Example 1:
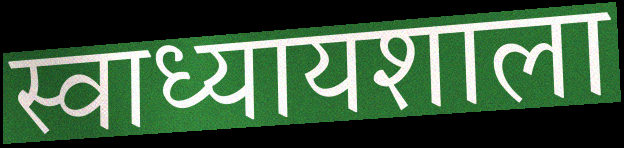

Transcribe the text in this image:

स्वाध्यायशाला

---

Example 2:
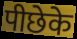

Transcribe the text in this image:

पीछेके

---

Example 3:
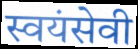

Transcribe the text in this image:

स्वयंसेवी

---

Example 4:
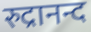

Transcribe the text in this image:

रुद्रानन्द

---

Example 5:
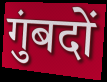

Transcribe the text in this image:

गुंबदों